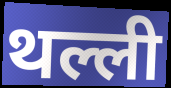
थल्ली